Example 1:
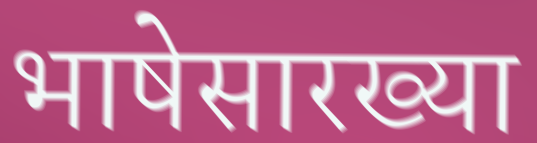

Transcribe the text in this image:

भाषेसारख्या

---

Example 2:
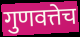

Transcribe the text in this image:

गुणवत्तेच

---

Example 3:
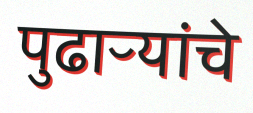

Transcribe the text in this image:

पुढाऱ्यांचे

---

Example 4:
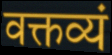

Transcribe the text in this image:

वक्तव्यं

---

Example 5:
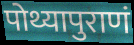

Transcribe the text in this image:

पोथ्यापुराणं